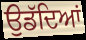
ਉਡੱਦਿਆਂ